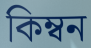
কিম্বন